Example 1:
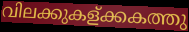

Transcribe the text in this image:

വിലക്കുകള്ക്കകത്തു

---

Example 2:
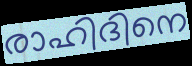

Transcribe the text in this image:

രാഹിദിനെ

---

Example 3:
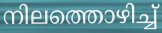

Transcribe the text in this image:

നിലത്തൊഴിച്ച്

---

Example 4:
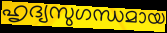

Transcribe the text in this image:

ഹൃദ്യസുഗന്ധമായ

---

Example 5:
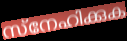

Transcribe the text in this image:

സ്‌നേഹിക്കുക